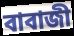
বাবাজী